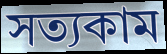
সত্যকাম